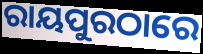
ରାୟପୁରଠାରେ